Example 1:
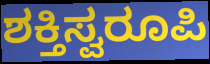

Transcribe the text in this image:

ಶಕ್ತಿಸ್ವರೂಪಿ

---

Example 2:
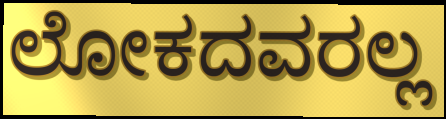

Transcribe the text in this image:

ಲೋಕದವರಲ್ಲ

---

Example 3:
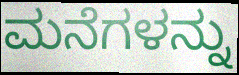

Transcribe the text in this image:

ಮನೆಗಳನ್ನು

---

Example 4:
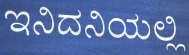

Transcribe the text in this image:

ಇನಿದನಿಯಲ್ಲಿ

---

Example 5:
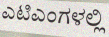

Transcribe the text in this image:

ಎಟಿಎಂಗಳಲ್ಲಿ